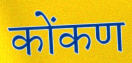
कोंकण